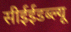
सीईईडब्ल्यू